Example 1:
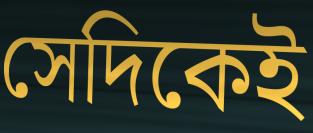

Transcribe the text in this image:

সেদিকেই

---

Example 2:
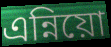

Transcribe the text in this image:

এন্নিয়ো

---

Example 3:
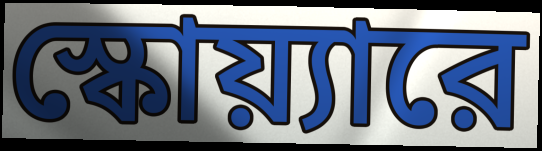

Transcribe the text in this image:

স্কোয়্যারে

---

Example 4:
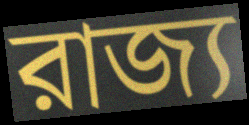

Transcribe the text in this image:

রাজ্য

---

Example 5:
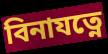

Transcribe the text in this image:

বিনাযত্নে